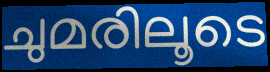
ചുമരിലൂടെ